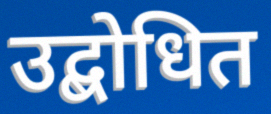
उद्बोधित